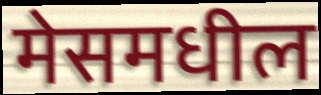
मेसमधील